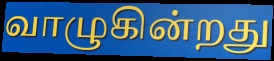
வாழுகின்றது